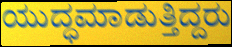
ಯುದ್ಧಮಾಡುತ್ತಿದ್ದರು